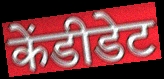
केंडीडेट